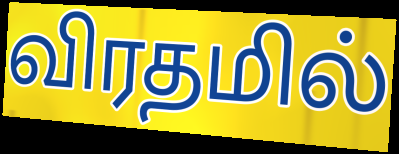
விரதமில்